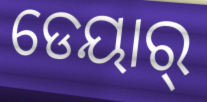
ଡେୟାର୍